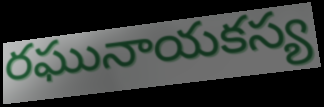
రఘునాయకస్య